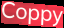
Coppy